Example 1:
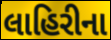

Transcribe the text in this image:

લાહિરીના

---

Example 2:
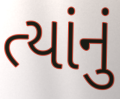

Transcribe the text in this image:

ત્યાંનું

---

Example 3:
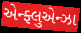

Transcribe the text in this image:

એન્ફ્લુએન્ઝા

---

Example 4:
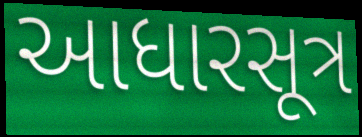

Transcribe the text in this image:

આધારસૂત્ર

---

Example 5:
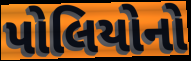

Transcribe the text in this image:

પોલિયોનો